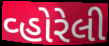
વ્હોરેલી